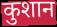
कुशान